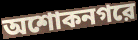
অশোকনগরে